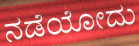
ನಡೆಯೋದು